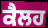
ਕੈਲਹ